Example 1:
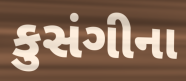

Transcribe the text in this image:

કુસંગીના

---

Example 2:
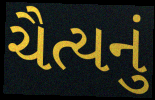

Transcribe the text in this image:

ચૈત્યનું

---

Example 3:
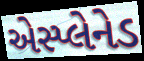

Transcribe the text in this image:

એસ્પ્લેનેડ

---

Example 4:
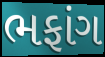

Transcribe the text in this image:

ભફાંગ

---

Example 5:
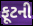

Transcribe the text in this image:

ફૂટની